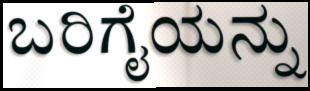
ಬರಿಗೈಯನ್ನು